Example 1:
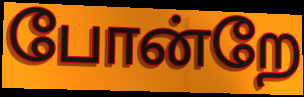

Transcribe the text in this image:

போன்றே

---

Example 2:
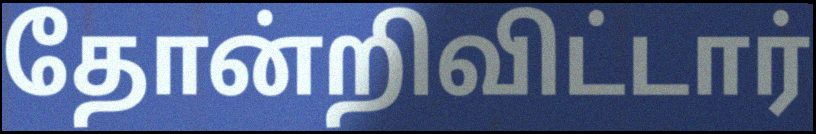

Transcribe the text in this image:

தோன்றிவிட்டார்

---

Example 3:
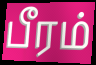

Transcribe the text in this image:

பீரம்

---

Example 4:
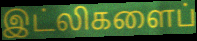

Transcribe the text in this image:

இட்லிகளைப்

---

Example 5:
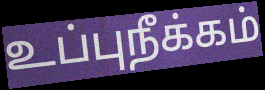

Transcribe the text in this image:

உப்புநீக்கம்